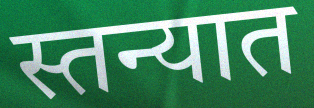
स्तन्यात